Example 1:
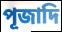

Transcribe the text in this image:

পূজাদি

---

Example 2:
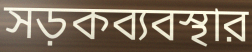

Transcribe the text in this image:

সড়কব্যবস্থার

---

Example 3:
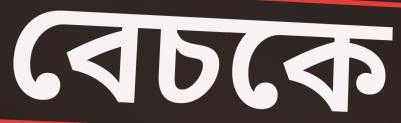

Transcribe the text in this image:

বেচকে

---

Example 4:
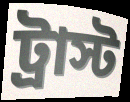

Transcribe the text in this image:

ট্রাস্ট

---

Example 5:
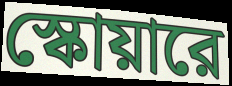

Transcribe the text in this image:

স্কোয়ারে